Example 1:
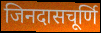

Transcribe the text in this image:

जिनदासचूर्णि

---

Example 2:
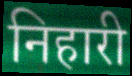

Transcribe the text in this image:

निहारी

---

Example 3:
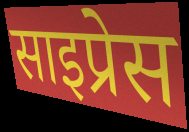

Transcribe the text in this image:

साइप्रेस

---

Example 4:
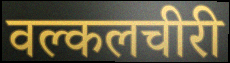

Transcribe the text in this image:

वल्कलचीरी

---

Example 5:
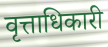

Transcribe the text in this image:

वृत्ताधिकारी